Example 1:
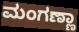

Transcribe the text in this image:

ಮಂಗಣ್ಣಾ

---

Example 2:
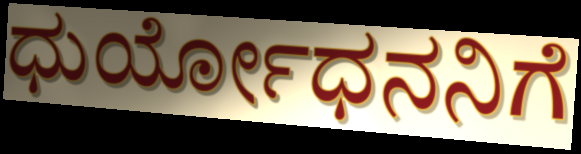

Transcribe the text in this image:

ಧುರ್ಯೋಧನನಿಗೆ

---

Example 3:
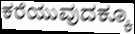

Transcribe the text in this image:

ಕರೆಯುವುದಕ್ಕೂ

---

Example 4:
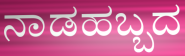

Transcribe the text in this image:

ನಾಡಹಬ್ಬದ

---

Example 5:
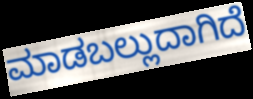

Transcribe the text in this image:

ಮಾಡಬಲ್ಲುದಾಗಿದೆ